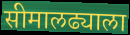
सीमालढ्याला